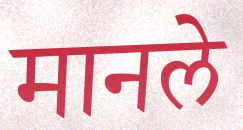
मानले